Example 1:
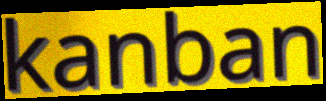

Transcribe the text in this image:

kanban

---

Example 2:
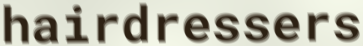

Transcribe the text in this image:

hairdressers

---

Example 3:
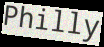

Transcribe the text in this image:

Philly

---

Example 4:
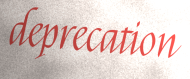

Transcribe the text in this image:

deprecation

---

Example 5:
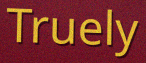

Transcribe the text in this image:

Truely